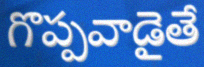
గొప్పవాడైతే